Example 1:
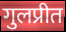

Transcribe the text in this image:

गुलप्रीत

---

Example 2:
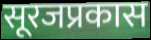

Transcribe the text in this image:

सूरजप्रकास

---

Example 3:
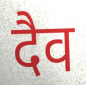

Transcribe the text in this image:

दैव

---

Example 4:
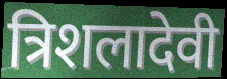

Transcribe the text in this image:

त्रिशलादेवी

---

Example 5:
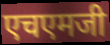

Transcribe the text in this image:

एचएमजी